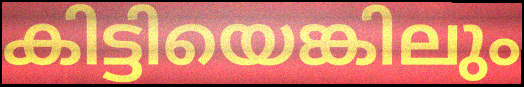
കിട്ടിയെങ്കിലും